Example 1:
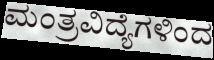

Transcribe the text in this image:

ಮಂತ್ರವಿದ್ಯೆಗಳಿಂದ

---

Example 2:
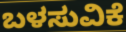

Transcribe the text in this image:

ಬಳಸುವಿಕೆ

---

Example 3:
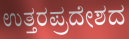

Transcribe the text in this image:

ಉತ್ತರಪ್ರದೇಶದ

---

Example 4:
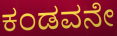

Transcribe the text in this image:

ಕಂಡವನೇ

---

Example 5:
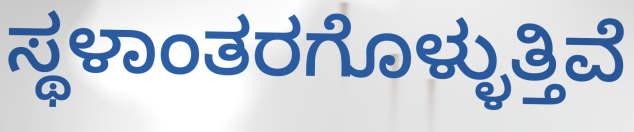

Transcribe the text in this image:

ಸ್ಥಳಾಂತರಗೊಳ್ಳುತ್ತಿವೆ